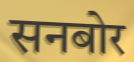
सनबोर